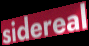
sidereal